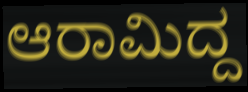
ಆರಾಮಿದ್ದ